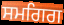
ਸਮਗਿਗ